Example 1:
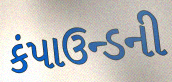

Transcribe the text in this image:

કંપાઉન્ડની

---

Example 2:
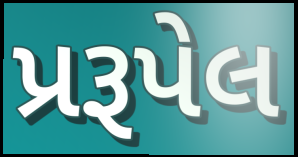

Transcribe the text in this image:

પ્રરૂપેલ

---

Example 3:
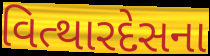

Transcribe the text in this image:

વિત્થારદેસના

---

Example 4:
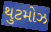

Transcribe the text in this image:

થુટમોઝ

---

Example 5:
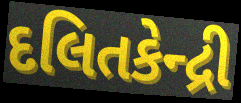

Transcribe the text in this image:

દલિતકેન્દ્રી